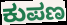
ಕುಪಣ